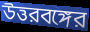
উত্তরবঙ্গের